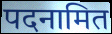
पदनामित